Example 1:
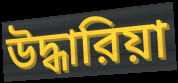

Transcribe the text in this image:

উদ্ধারিয়া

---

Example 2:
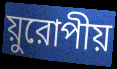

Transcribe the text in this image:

য়ুরোপীয়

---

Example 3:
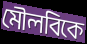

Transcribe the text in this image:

মৌলবিকে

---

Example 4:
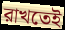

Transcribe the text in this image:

রাখতেই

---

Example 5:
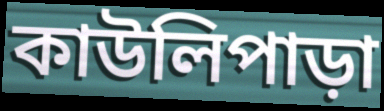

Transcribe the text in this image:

কাউলিপাড়া